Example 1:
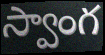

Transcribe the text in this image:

స్వాంగ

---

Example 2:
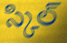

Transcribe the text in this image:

స్కిల్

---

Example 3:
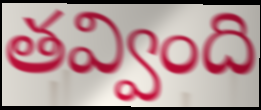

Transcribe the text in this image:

తవ్వింది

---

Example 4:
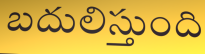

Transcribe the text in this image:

బదులిస్తుంది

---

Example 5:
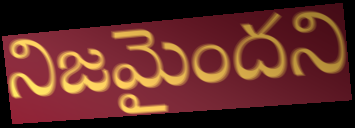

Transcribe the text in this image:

నిజమైందని